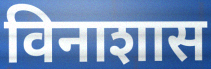
विनाशास